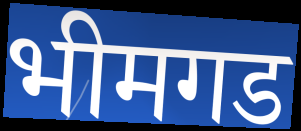
भीमगड